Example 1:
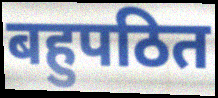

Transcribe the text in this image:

बहुपठित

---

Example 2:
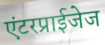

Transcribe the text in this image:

एंटरप्राईजेज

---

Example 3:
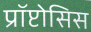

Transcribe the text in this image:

प्रॉप्टोसिस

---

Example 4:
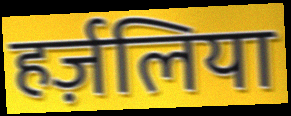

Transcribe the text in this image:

हर्ज़लिया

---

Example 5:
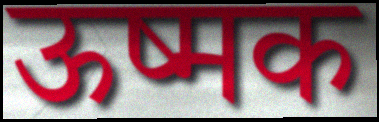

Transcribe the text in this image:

ऊष्मक